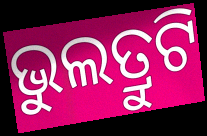
ଭୁଲତ୍ରୁଟି